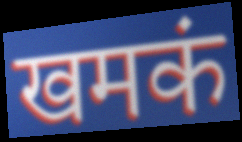
खमकं